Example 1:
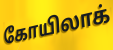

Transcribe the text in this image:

கோயிலாக்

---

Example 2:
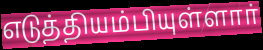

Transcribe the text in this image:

எடுத்தியம்பியுள்ளார்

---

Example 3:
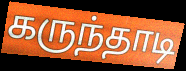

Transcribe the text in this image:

கருந்தாடி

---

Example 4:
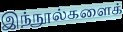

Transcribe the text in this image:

இந்நூல்களைக்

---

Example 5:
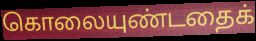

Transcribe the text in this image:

கொலையுண்டதைக்